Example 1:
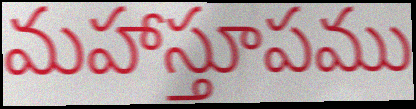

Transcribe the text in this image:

మహాస్తూపము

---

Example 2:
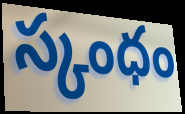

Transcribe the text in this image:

స్కంధం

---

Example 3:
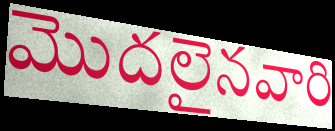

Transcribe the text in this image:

మొదలైనవారి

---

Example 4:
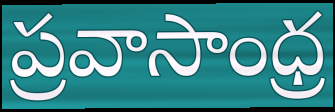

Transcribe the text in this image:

ప్రవాసాంధ్ర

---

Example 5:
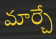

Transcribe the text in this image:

మార్చే